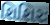
શિશિરઃ